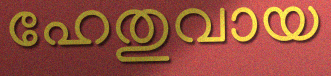
ഹേതുവായ